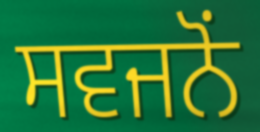
ਸਵਜਨੋਂ